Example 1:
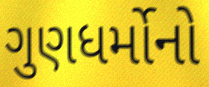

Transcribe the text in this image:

ગુણધર્મોનો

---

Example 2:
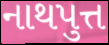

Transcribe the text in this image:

નાથપુત્ત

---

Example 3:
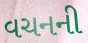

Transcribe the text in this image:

વચનની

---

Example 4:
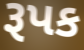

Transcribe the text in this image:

રૂપક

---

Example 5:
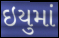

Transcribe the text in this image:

ઇયુમાં